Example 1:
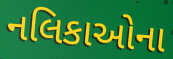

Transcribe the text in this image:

નલિકાઓના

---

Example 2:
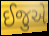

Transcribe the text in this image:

ઈજુએ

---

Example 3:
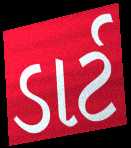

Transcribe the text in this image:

ડાર્ટ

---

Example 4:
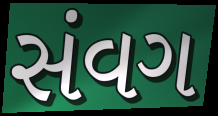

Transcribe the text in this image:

સંવગ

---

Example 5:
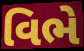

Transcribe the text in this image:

વિભે